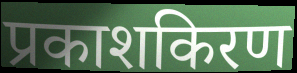
प्रकाशकिरण